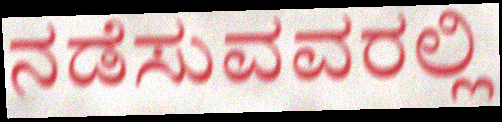
ನಡೆಸುವವರಲ್ಲಿ